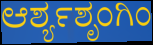
ಆರ್ಶ್ಯಶೃಂಗಿಂ